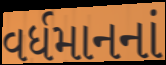
વર્ધમાનનાં